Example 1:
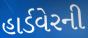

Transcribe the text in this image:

હાર્ડવેરની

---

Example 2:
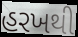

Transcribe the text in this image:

હરખથી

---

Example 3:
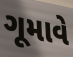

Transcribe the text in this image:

ગૂમાવે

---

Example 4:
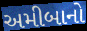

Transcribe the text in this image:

અમીબાનો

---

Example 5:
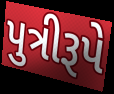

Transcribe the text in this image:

પુત્રીરૂપે